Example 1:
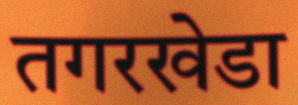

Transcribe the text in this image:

तगरखेडा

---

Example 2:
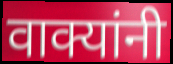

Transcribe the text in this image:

वाक्यांनी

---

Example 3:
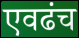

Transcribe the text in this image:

एवढंच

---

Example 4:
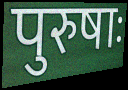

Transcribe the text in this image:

पुरुषाः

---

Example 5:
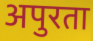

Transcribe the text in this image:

अपुरता